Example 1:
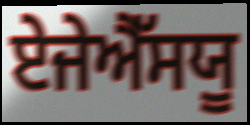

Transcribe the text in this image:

ਏਜੇਐੱਸਯੂ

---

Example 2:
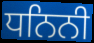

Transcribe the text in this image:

ਧਨਿਨੀ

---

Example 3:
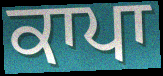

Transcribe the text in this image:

ਕਾਪਾ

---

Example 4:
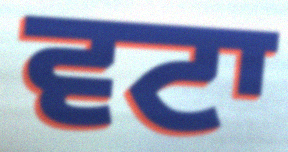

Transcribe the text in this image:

ਵਟਾ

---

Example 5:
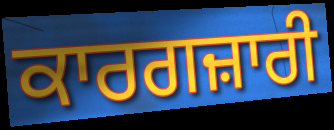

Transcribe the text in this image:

ਕਾਰਗਜ਼ਾਰੀ